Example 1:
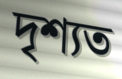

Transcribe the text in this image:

দৃশ্যত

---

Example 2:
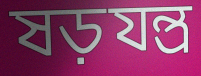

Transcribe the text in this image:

ষড়যন্ত্ৰ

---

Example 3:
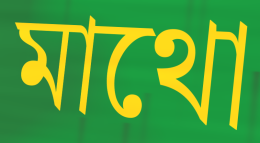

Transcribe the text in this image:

মাথো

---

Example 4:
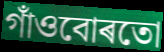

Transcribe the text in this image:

গাঁওবোৰতো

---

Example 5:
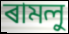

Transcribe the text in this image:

ৰামলু